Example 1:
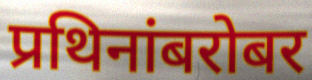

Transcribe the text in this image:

प्रथिनांबरोबर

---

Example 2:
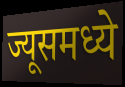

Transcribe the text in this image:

ज्यूसमध्ये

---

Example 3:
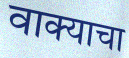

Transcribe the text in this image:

वाक्याचा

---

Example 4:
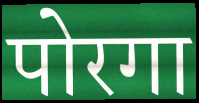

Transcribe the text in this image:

पोरगा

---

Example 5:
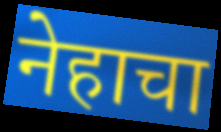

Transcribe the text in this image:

नेहाचा